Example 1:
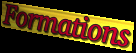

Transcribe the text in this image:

Formations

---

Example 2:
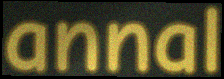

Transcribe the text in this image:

annal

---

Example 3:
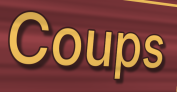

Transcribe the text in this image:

Coups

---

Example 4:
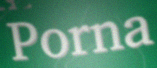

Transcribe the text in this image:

Porna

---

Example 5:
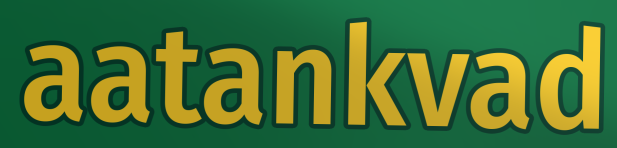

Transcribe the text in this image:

aatankvad